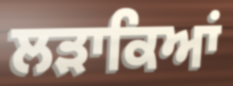
ਲੜਾਕਿਆਂ